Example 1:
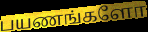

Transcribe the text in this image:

பயணங்களோ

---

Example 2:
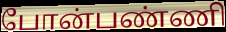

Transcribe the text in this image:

போன்பண்ணி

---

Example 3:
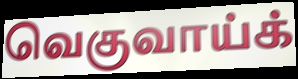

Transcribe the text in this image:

வெகுவாய்க்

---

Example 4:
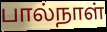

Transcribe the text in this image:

பால்நாள்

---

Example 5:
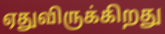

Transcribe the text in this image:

ஏதுவிருக்கிறது